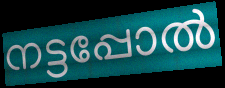
നട്ടപ്പോൽ